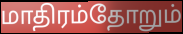
மாதிரம்தோறும்